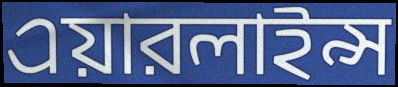
এয়ারলাইন্স